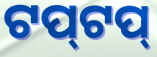
ଟପ୍‌ଟପ୍